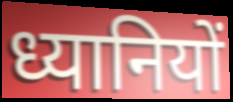
ध्यानियों